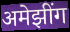
अमेझींग